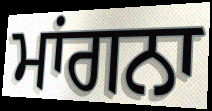
ਮਾਂਗਨਾ